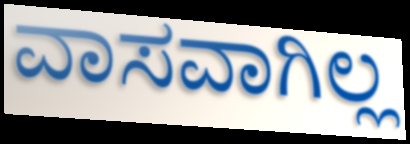
ವಾಸವಾಗಿಲ್ಲ